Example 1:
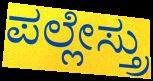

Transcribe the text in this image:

ಪಲ್ಲೇಸ್ತ್ರು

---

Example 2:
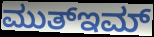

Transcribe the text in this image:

ಮುತ್ಇಮ್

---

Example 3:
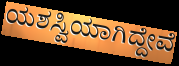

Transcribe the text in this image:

ಯಶಸ್ವಿಯಾಗಿದ್ದೇವೆ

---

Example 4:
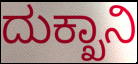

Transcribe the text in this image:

ದುಕ್ಖಾನಿ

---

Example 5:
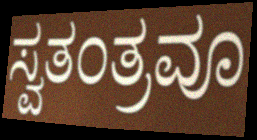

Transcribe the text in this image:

ಸ್ವತಂತ್ರವೂ